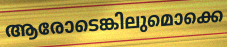
ആരോടെങ്കിലുമൊക്കെ